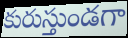
కురుస్తుండగా